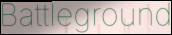
Battleground